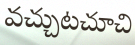
వచ్చుటచూచి